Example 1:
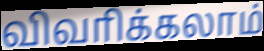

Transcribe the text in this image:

விவரிக்கலாம்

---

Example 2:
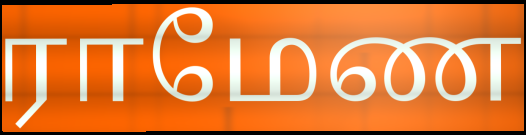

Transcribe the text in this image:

ராமேண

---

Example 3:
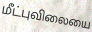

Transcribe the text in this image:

மீட்புவிலையை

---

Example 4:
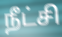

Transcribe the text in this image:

நீட்சி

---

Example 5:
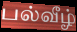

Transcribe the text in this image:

பல்வீழ்